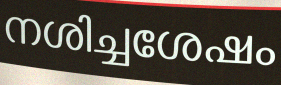
നശിച്ചശേഷം